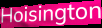
Hoisington